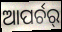
ଆପର୍ଚର୍